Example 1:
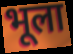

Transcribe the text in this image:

भूला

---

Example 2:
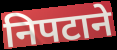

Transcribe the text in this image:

निपटाने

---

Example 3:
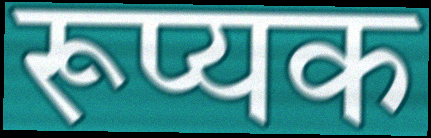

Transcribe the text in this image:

रूप्यक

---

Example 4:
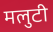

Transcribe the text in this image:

मलुटी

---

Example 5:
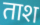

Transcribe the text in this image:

ताश